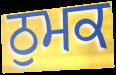
ਠੁਮਕ